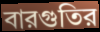
বারগুতির